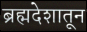
ब्रह्मदेशातून